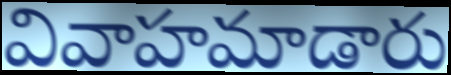
వివాహమాడారు